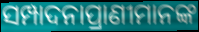
ସମ୍ପାଦନାପ୍ରାଣୀମାନଙ୍କ